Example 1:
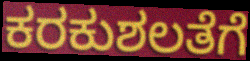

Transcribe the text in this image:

ಕರಕುಶಲತೆಗೆ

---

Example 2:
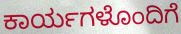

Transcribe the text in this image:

ಕಾರ್ಯಗಳೊಂದಿಗೆ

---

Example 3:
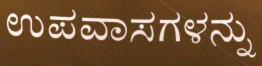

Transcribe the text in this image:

ಉಪವಾಸಗಳನ್ನು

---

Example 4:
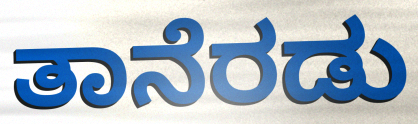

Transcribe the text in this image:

ತಾನೆರಡು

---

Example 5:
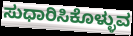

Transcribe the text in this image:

ಸುಧಾರಿಸಿಕೊಳ್ಳುವ